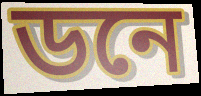
ডনে